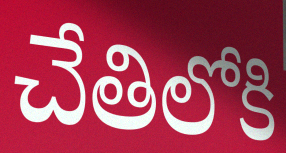
చేతిలోకి